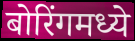
बोरिंगमध्ये